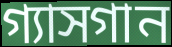
গ্যাসগান